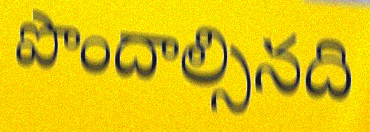
పొందాల్సినది